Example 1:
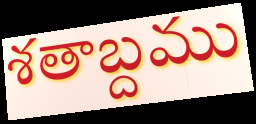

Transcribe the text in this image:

శతాబ్దము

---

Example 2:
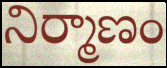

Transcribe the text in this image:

నిర్మాణం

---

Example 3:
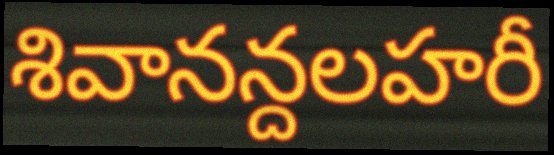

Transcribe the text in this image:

శివానన్దలహరీ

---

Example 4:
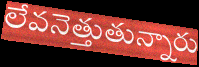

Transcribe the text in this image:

లేవనెత్తుతున్నారు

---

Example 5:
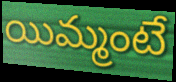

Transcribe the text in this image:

యిమ్మంటే